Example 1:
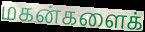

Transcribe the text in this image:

மகன்களைக்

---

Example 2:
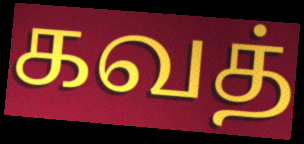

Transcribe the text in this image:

கவத்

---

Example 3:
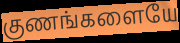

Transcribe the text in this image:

குணங்களையே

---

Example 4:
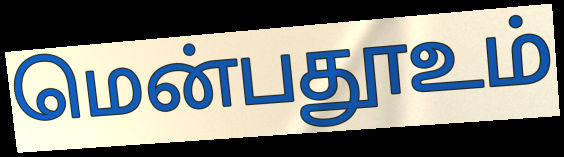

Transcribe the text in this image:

மென்பதூஉம்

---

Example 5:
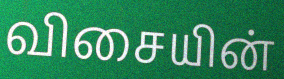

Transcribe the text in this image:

விசையின்